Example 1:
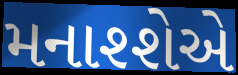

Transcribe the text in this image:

મનાશ્શેએ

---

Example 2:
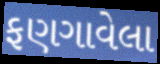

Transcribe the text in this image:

ફણગાવેલા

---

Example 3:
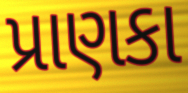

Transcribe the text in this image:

પ્રાણકા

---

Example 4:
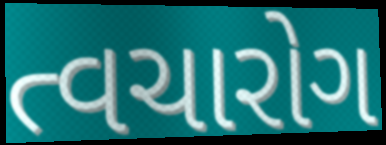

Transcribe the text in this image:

ત્વચારોગ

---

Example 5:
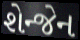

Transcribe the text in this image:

શેન્જેન